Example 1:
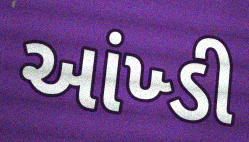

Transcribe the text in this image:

આંખ્ડી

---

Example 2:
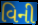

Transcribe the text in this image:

વિની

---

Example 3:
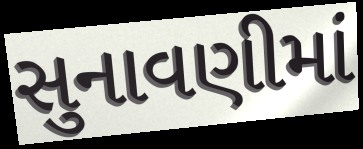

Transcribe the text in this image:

સુનાવણીમાં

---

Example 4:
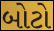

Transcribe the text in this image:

બોટો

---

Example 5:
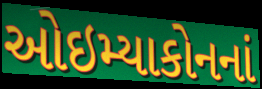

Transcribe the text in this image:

ઓઇમ્યાકોનનાં